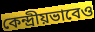
কেন্দ্রীয়ভাবেও